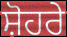
ਸ਼ੋਹਰੇ